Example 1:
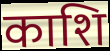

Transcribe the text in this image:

काशि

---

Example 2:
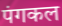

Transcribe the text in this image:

पंगकल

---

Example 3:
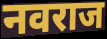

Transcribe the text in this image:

नवराज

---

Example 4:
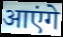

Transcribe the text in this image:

आएंगे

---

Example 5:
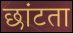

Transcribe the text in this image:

छांटता